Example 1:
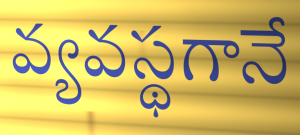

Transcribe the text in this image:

వ్యవస్థగానే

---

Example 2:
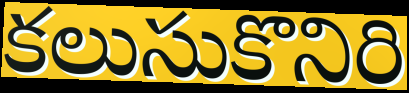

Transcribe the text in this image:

కలుసుకొనిరి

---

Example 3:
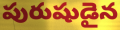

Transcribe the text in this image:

పురుషుడైన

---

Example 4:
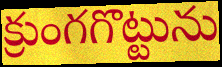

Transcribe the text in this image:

క్రుంగగొట్టును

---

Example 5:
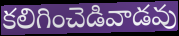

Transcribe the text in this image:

కలిగించెడివాడవు